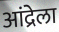
आंद्रेला